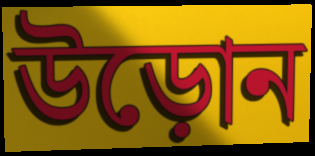
উড়োন